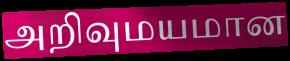
அறிவுமயமான